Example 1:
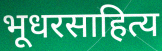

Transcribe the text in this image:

भूधरसाहित्य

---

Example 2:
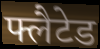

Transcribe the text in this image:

फ्लैटेड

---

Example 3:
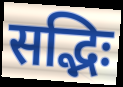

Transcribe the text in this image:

सद्भिः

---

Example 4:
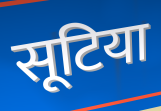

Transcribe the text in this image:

सूटिया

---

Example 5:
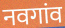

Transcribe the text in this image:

नवगांव